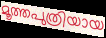
മൂത്തപുത്രിയായ